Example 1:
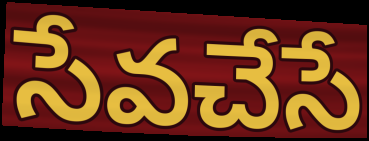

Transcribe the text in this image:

సేవచేసే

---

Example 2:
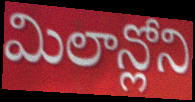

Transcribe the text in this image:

మిలాన్లోని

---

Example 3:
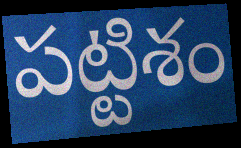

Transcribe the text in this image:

పట్టిశం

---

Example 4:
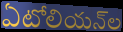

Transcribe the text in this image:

ఏటోలియన్‌ల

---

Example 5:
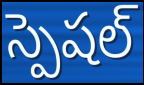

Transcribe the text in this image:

స్పెషల్